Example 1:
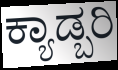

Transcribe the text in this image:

ಕ್ಯಾಡ್ಬರಿ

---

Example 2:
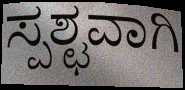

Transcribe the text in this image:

ಸ್ಪಶ್ಟವಾಗಿ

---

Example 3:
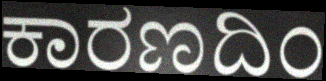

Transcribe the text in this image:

ಕಾರಣದಿಂ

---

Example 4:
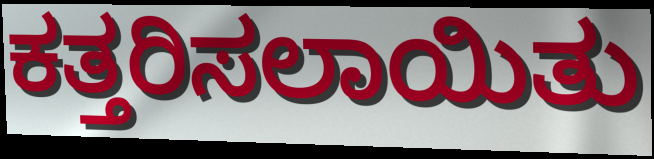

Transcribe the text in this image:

ಕತ್ತರಿಸಲಾಯಿತು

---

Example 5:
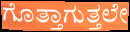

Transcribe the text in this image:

ಗೊತ್ತಾಗುತ್ತಲೇ